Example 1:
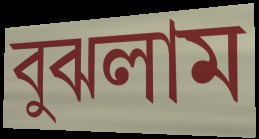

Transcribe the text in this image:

বুঝলাম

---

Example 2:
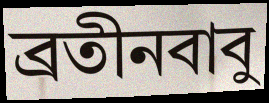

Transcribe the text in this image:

ব্রতীনবাবু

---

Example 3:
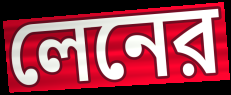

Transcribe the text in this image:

লেনের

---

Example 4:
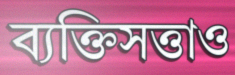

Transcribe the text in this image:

ব্যক্তিসত্তাও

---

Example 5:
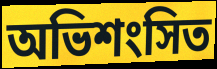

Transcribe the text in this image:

অভিশংসিত